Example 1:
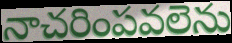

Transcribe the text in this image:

నాచరింపవలెను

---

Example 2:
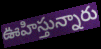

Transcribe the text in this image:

ఊహిస్తున్నారు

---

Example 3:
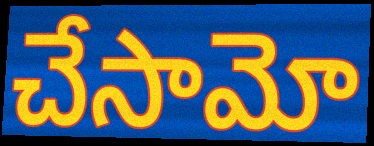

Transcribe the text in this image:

చేసామో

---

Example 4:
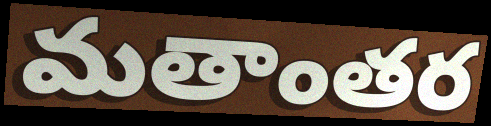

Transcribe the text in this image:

మతాంతర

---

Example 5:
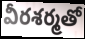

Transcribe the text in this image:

వీరశర్మతో